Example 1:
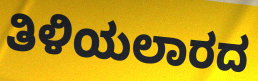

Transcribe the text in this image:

ತಿಳಿಯಲಾರದ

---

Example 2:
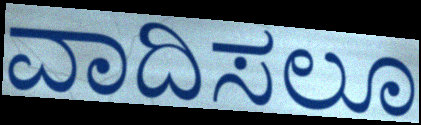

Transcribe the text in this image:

ವಾದಿಸಲೂ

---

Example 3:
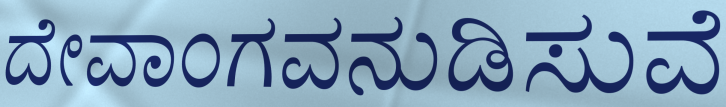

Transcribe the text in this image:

ದೇವಾಂಗವನುಡಿಸುವೆ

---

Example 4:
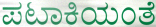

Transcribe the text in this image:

ಪಟಾಕಿಯಂತೆ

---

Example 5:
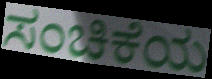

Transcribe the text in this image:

ಸಂಚಿಕೆಯ